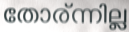
തോര്ന്നില്ല